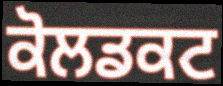
ਕੋਲਡਕਟ